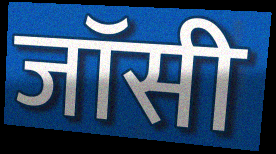
जॉसी